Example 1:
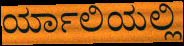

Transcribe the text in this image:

ರ್ಯಾಲಿಯಲ್ಲಿ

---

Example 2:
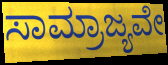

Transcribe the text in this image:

ಸಾಮ್ರಾಜ್ಯವೇ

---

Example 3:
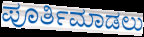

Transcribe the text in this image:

ಪೂರ್ತಿಮಾಡಲು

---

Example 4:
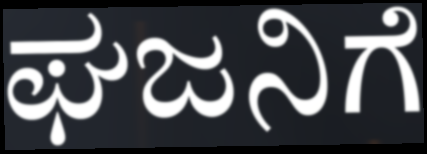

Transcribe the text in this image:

ಘಜನಿಗೆ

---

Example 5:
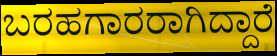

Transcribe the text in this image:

ಬರಹಗಾರರಾಗಿದ್ದಾರೆ